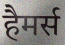
हैमर्स